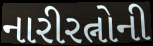
નારીરત્નોની